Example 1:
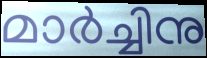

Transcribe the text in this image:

മാർച്ചിനു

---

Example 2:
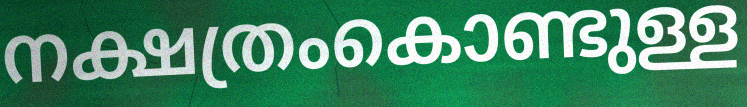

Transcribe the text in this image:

നക്ഷത്രംകൊണ്ടുള്ള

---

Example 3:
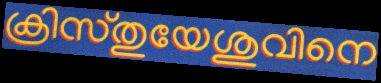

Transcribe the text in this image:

ക്രിസ്തുയേശുവിനെ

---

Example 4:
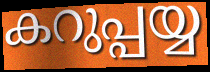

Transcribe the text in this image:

കറുപ്പയ്യ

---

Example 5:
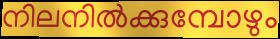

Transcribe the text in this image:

നിലനിൽക്കുമ്പോഴും